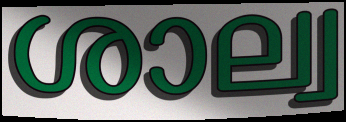
ശാല്വ